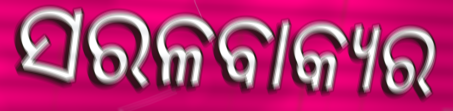
ସରଳବାକ୍ୟର